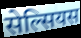
सेल्सियस